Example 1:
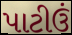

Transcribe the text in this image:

પાટીઉં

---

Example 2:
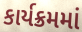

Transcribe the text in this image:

કાર્યક્રમમાં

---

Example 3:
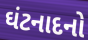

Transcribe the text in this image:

ઘંટનાદનો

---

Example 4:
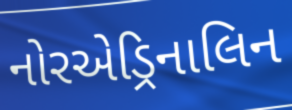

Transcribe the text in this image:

નોરએડ્રિનાલિન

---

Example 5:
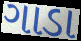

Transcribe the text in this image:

ગાડા